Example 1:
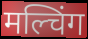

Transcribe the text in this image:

मल्चिंग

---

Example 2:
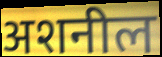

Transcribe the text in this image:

अशनील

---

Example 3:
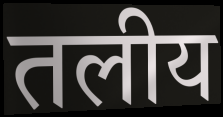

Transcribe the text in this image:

तलीय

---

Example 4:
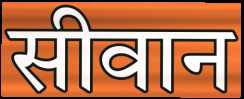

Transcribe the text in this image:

सीवान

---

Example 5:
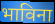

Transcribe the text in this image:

भाविना